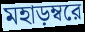
মহাড়ম্বরে